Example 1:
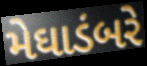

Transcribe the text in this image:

મેઘાડંબરે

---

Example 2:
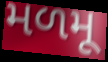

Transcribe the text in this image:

મળમૂ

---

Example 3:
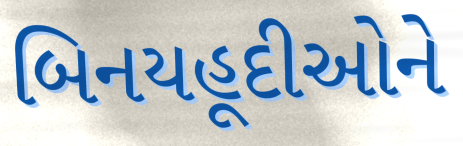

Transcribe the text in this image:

બિનયહૂદીઓને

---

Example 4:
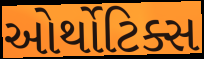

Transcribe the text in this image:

ઓર્થોટિક્સ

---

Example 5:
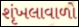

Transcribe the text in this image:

શૃંખલાવાળો